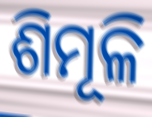
ଶିମୂଳି